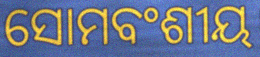
ସୋମବଂଶୀୟ